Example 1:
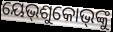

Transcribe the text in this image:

ୟେଭ୍‌ଶୁକୋଭ୍‌ଙ୍କୁ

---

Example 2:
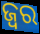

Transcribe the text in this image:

ଜ୍ବର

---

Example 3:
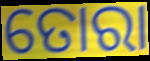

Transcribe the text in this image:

ତୋରା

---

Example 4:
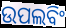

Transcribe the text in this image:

ଉପଲବିଂ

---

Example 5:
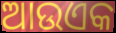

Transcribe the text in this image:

ଆଉଏକ